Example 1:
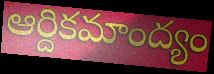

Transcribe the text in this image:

ఆర్దికమాంద్యం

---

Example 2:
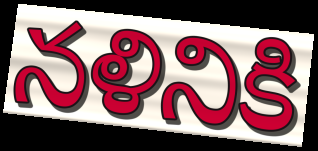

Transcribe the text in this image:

నళినికి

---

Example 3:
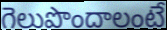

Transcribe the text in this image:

గెలుపొందాలంటే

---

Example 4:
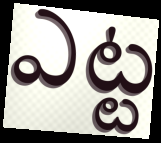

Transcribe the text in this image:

ఎట్ట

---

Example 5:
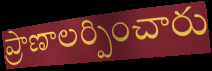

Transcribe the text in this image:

ప్రాణాలర్పించారు